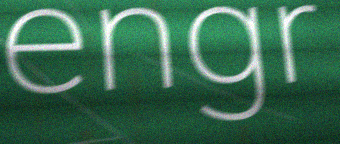
engr